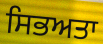
ਸਿਭਅਤਾ